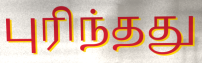
புரிந்தது